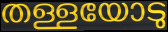
തള്ളയോടു